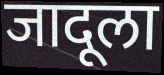
जादूला